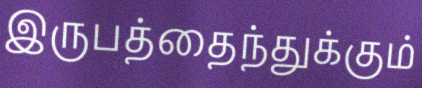
இருபத்தைந்துக்கும்